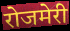
रोजमेरी